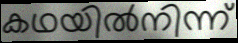
കഥയിൽനിന്ന്